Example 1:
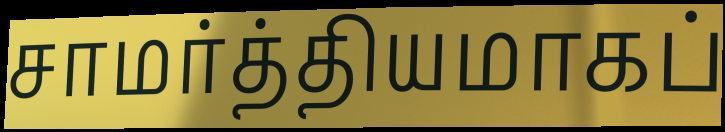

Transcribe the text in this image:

சாமர்த்தியமாகப்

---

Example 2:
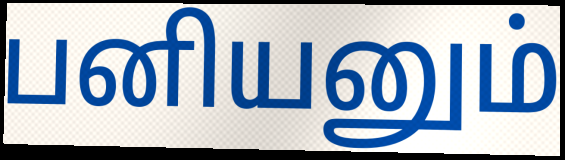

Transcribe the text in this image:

பனியனும்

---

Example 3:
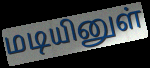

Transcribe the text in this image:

மடியினுள்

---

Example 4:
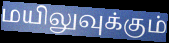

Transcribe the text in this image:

மயிலுவுக்கும்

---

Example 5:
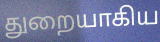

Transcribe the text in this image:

துறையாகிய